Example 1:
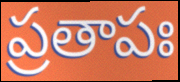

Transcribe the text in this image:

ప్రతాపః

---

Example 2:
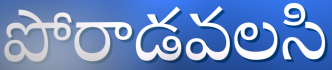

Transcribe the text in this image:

పోరాడవలసి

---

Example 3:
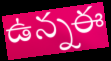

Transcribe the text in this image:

ఉన్నఈ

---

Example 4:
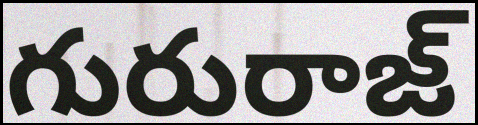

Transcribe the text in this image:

గురురాజ్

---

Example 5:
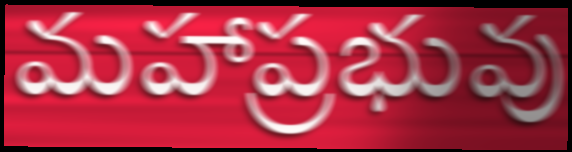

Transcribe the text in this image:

మహాప్రభువు